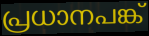
പ്രധാനപങ്ക്